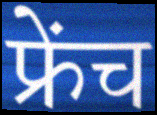
फ्रेंच